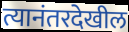
त्यानंतरदेखील